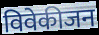
विवेकीजन